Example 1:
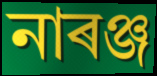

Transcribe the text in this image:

নাৰঞ্জ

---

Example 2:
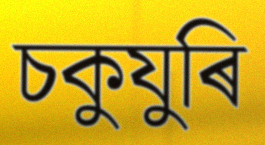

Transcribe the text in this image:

চকুযুৰি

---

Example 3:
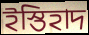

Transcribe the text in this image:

ইস্তিহাদ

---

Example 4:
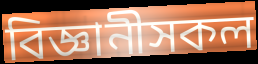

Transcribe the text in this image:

বিজ্ঞানীসকল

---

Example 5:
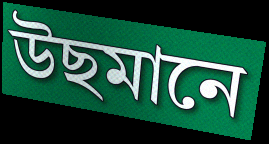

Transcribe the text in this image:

উছমানে